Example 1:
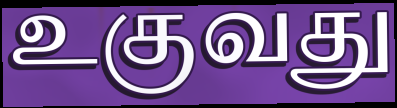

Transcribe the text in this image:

உகுவது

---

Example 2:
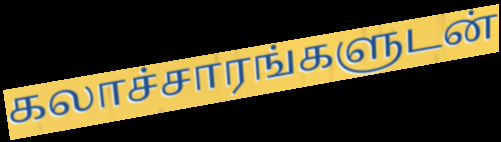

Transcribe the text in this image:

கலாச்சாரங்களுடன்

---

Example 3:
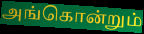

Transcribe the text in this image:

அங்கொன்றும்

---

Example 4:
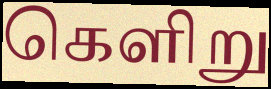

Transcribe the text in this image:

கெளிறு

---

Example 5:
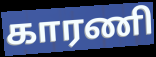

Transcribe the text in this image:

காரணி